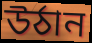
উঠান